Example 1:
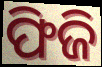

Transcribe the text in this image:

ଫିଜି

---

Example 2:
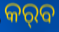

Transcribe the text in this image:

କର୍‌ବ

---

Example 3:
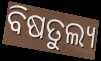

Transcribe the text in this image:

ବିଷତୁଲ୍ୟ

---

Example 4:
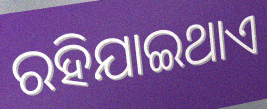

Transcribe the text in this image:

ରହିଯାଇଥାଏ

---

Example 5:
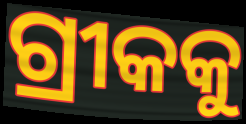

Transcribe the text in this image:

ଗ୍ରୀକକୁ